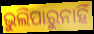
ଭୁଲିପାରୁନାହିଁ